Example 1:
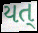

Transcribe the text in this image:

યત્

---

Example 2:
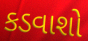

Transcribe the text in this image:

કડવાશો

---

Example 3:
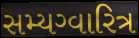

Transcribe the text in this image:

સમ્યગ્વારિત્ર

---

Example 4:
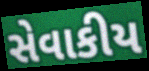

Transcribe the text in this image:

સેવાકીય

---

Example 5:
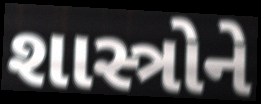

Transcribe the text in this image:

શાસ્ત્રોને